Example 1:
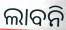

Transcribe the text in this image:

ଲାବନି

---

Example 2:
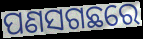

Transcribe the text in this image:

ପଣସଗଛରେ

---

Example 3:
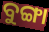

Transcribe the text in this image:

ବୁଙ୍ଗା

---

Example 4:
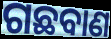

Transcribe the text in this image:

ଗଛବାଣ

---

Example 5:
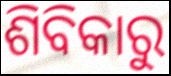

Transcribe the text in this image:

ଶିବିକାରୁ